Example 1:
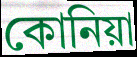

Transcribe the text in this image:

কোনিয়া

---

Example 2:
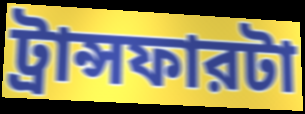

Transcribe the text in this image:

ট্রান্সফারটা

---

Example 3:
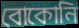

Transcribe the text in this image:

বোকোনি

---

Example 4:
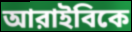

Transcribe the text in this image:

আরাইবিকে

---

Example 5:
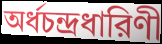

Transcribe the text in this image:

অর্ধচন্দ্রধারিণী